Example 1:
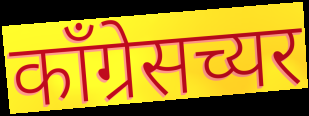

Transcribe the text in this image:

काँग्रेसच्यर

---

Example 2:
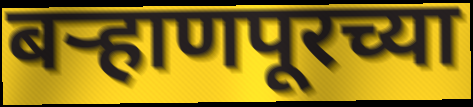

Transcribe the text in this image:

बऱ्हाणपूरच्या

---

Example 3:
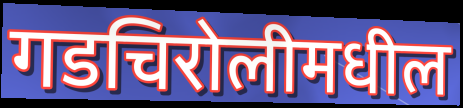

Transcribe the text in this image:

गडचिरोलीमधील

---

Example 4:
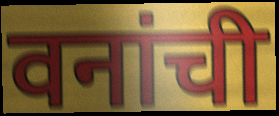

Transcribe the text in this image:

वनांची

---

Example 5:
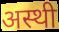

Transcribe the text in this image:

अस्थी